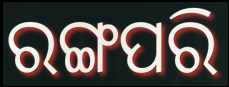
ରଙ୍ଗପରି